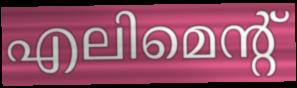
എലിമെന്റ്